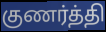
குணர்த்தி